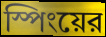
স্পিংয়ের